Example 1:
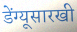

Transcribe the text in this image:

डेंग्यूसारखी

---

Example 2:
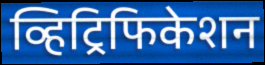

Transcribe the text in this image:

व्हिट्रिफिकेशन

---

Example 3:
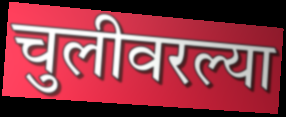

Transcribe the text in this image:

चुलीवरल्या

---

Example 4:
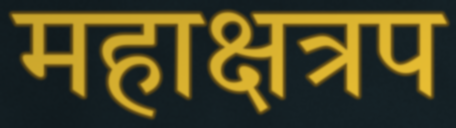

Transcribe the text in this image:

महाक्षत्रप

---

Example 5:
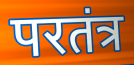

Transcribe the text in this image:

परतंत्र